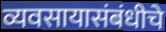
व्यवसायासंबंधीचे